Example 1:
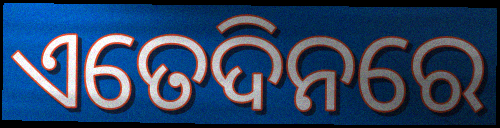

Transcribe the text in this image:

ଏତେଦିନରେ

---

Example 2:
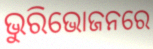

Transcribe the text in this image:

ଭୁରିଭୋଜନରେ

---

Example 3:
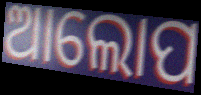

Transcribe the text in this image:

ଆଲୋପ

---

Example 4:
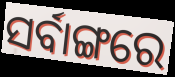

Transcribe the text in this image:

ସର୍ବାଙ୍ଗରେ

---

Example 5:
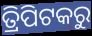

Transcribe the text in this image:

ତ୍ରିପିଟକରୁ